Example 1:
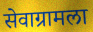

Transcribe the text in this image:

सेवाग्रामला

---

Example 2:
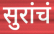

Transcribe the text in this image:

सुरांचं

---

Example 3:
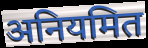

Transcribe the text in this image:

अनियमित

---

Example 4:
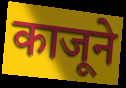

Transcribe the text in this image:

काजूने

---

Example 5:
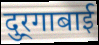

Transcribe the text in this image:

दुर्गाबाई